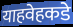
याहवेहकडे